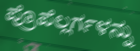
ಪ್ರೊಪೆಲ್ಲರ್ಗಳನ್ನು